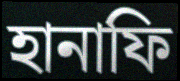
হানাফি